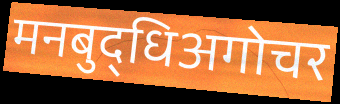
मनबुद्धिअगोचर